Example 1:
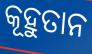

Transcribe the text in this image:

କୂହୁତାନ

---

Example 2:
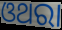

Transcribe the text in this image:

ଓଥରା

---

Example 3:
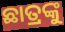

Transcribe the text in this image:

ଛାତ୍ରଙ୍କୁ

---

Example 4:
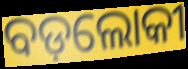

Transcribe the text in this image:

ବଡ଼ଲୋକୀ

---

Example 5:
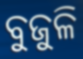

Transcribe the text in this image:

ବୁଜୁଳି